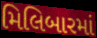
મિલિબારમાં